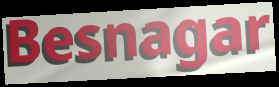
Besnagar